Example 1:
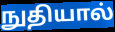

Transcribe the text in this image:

நுதியால்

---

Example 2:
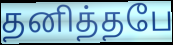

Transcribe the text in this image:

தனித்தபே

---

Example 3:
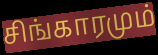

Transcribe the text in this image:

சிங்காரமும்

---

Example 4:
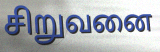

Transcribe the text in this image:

சிறுவனை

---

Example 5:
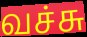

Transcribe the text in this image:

வச்சு